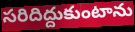
సరిదిద్దుకుంటాను